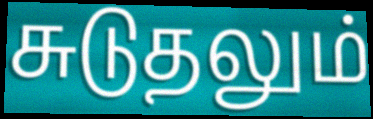
சுடுதலும்